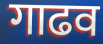
गाढव